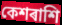
কেশৰাশি